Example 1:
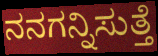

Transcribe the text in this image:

ನನಗನ್ನಿಸುತ್ತೆ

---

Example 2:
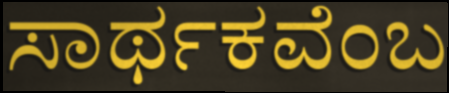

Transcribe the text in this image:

ಸಾರ್ಥಕವೆಂಬ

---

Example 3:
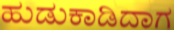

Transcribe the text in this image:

ಹುಡುಕಾಡಿದಾಗ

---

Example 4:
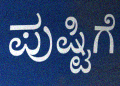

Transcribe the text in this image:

ಪುಷ್ಟಿಗೆ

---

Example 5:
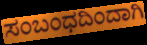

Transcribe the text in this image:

ಸಂಬಂಧದಿಂದಾಗಿ